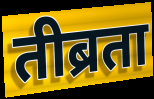
तीब्रता